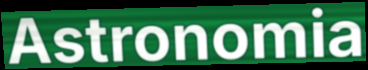
Astronomia